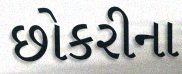
છોકરીના